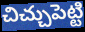
చిచ్చుపెట్టి